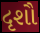
દૃશૌ